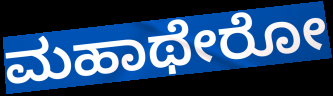
ಮಹಾಥೇರೋ